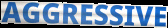
AGGRESSIVE